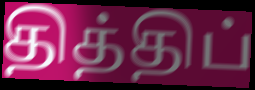
தித்திப்